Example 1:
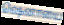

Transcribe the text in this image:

ஷெனாயை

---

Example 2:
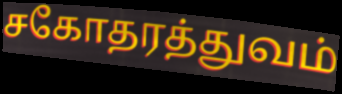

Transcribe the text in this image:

சகோதரத்துவம்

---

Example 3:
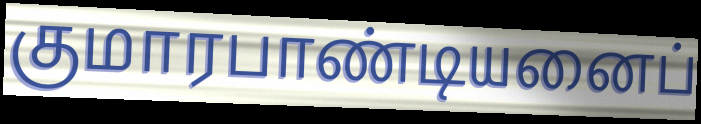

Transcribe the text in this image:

குமாரபாண்டியனைப்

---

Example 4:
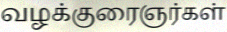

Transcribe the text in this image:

வழக்குரைஞர்கள்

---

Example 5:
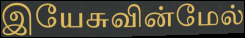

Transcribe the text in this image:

இயேசுவின்மேல்